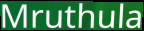
Mruthula